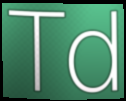
Td